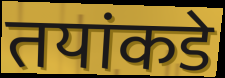
तयांकडे